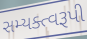
સમ્યક્ત્વરૂપી